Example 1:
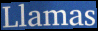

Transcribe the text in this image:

Llamas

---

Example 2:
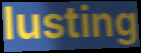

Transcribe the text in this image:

lusting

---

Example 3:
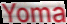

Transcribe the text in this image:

Yoma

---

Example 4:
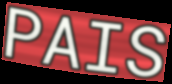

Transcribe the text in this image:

PAIS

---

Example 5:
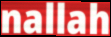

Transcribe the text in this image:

nallah